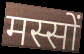
मस्सों